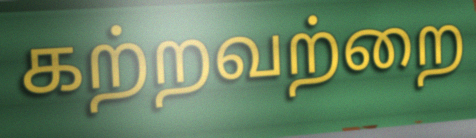
கற்றவற்றை